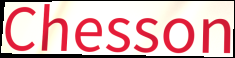
Chesson